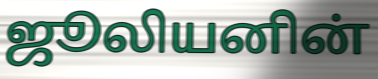
ஜூலியனின்